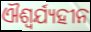
ଐଶ୍ୱର୍ଯ୍ୟହୀନ